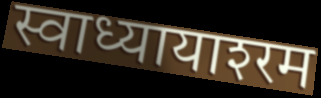
स्वाध्यायाश्रम